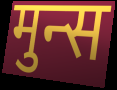
मुन्स